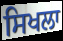
ਸਿਖਲਾ